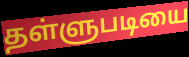
தள்ளுபடியை